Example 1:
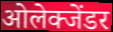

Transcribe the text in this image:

ओलेक्जेंडर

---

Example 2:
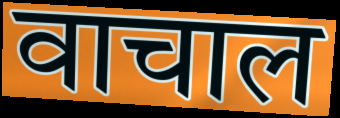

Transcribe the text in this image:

वाचाल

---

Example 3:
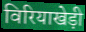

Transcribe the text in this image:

विरियाखेड़ी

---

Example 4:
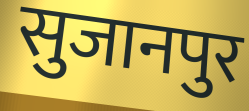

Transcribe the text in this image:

सुजानपुर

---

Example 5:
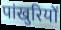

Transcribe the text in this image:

पांखुरियों